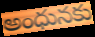
అంధునకు